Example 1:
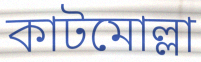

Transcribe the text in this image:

কাটমোল্লা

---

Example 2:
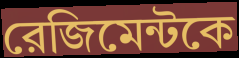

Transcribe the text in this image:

রেজিমেন্টকে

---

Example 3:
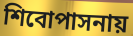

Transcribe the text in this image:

শিবোপাসনায়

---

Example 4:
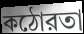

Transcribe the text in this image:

কঠোরতা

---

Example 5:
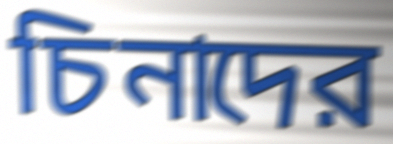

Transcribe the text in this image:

চিনাদের